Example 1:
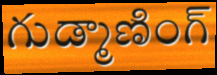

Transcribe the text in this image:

గుడ్మాణింగ్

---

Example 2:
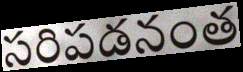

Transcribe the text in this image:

సరిపడనంత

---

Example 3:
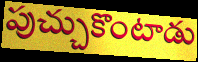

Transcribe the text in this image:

పుచ్చుకొంటాడు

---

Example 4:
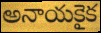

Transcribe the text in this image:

అనాయకైక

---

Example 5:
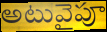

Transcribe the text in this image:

అటువైపూ